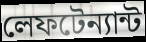
লেফটেন্যান্ট